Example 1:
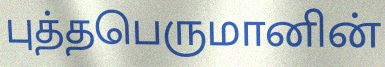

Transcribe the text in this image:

புத்தபெருமானின்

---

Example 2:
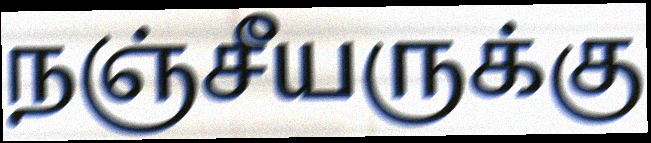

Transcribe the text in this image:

நஞ்சீயருக்கு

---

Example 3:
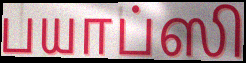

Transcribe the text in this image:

பயாப்ஸி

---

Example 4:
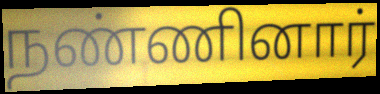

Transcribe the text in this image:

நண்ணினார்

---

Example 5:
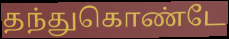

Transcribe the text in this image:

தந்துகொண்டே